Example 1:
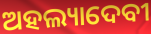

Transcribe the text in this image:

ଅହଲ୍ୟାଦେବୀ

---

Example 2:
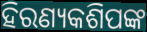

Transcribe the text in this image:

ହିରଣ୍ୟକଶିପଙ୍କ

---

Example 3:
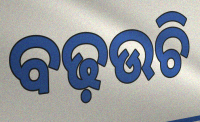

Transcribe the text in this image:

ବଢ଼ଉଚି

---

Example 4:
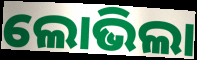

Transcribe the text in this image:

ଲୋଭିଲା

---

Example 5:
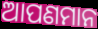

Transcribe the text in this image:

ଆପଣମାନ